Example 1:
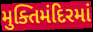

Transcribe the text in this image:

મુક્તિમંદિરમાં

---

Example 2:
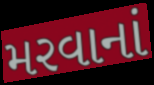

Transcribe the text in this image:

મરવાનાં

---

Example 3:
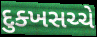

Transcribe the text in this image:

દુક્ખસચ્ચે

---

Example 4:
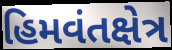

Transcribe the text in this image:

હિમવંતક્ષેત્ર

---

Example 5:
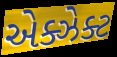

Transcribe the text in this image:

એક્ઝેક્ટ